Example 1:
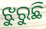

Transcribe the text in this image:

ଝୁରୁଛି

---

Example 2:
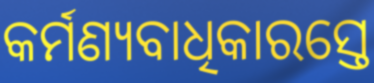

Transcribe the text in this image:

କର୍ମଣ୍ୟବାଧିକାରସ୍ତେ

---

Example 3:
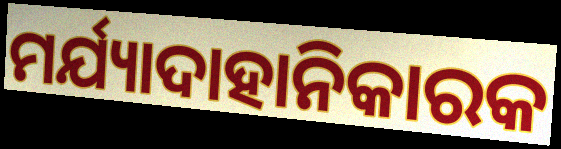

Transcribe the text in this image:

ମର୍ଯ୍ୟାଦାହାନିକାରକ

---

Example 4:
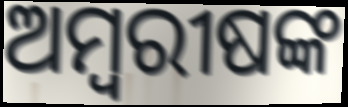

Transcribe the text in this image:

ଅମ୍ବରୀଷଙ୍କ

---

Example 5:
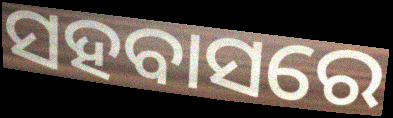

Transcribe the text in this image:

ସହବାସରେ